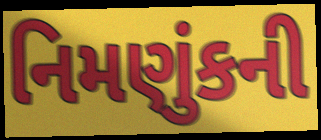
નિમણુંકની